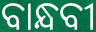
ବାନ୍ଧବୀ